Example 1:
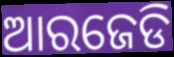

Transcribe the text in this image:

ଆରଜେଡି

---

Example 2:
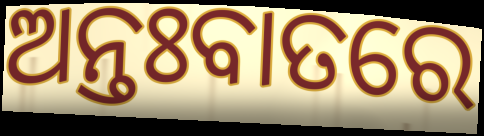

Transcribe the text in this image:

ଅନ୍ତଃବାତରେ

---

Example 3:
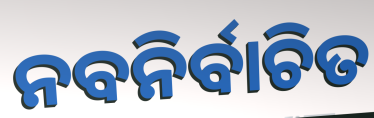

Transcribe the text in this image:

ନବନିର୍ବାଚିତ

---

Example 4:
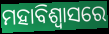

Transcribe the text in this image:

ମହାବିଶ୍ୱାସରେ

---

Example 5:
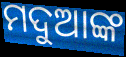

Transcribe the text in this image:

ମଦୁଆଙ୍କ